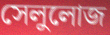
সেলুলোজ